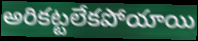
అరికట్టలేకపోయాయి